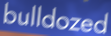
bulldozed